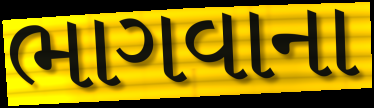
ભાગવાના